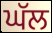
ਘੱਲ